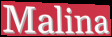
Malina